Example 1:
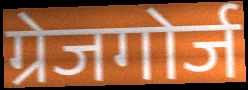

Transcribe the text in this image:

ग्रेजगोर्ज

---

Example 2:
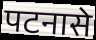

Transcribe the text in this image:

पटनासे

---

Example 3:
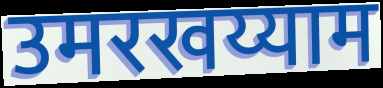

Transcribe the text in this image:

उमरखय्याम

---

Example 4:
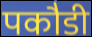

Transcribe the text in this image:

पकौडी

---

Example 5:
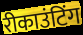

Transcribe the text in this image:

रीकाउंटिंग